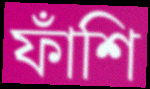
ফাঁশি